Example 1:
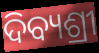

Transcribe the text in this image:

ଦିବ୍ୟଶ୍ରୀ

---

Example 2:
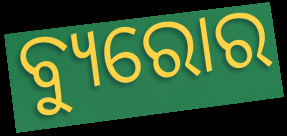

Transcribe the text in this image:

ବ୍ୟୁରୋର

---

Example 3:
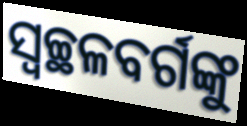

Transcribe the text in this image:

ସ୍ବଚ୍ଛଳବର୍ଗଙ୍କୁ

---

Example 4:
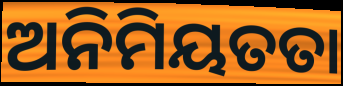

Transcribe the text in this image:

ଅନିମିୟତତା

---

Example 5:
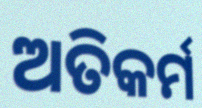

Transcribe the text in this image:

ଅତିକର୍ମ